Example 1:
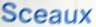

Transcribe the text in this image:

Sceaux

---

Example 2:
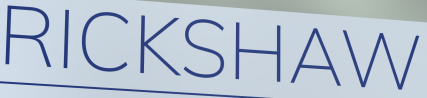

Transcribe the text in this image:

RICKSHAW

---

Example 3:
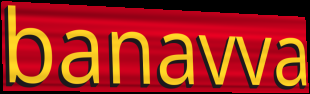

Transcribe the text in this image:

banavva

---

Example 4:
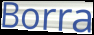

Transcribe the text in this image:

Borra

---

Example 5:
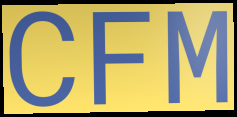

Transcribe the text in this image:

CFM